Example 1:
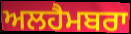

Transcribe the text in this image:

ਅਲਹੈਮਬਰਾ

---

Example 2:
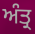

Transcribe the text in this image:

ਅੰਤ੍ਰ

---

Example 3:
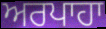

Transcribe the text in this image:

ਅਰਪਾਹਾ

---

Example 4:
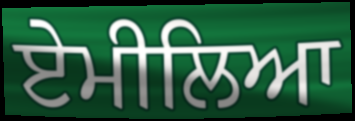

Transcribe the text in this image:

ਏਮੀਲਿਆ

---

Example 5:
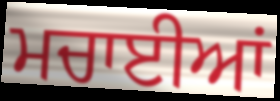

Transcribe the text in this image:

ਮਚਾਈਆਂ